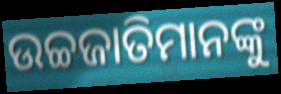
ଉଚ୍ଚଜାତିମାନଙ୍କୁ